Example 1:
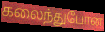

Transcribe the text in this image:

கலைந்துபோன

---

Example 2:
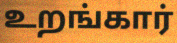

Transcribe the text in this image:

உறங்கார்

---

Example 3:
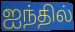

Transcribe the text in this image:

ஐந்தில்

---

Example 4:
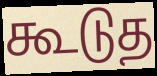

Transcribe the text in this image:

கூடுத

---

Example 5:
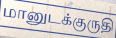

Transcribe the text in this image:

மானுடக்குருதி